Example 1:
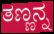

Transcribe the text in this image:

ತಣ್ಣನ್ನ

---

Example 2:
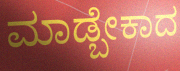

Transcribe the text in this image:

ಮಾಡ್ಬೇಕಾದ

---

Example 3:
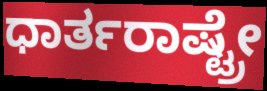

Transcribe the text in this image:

ಧಾರ್ತರಾಷ್ಟ್ರೇ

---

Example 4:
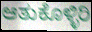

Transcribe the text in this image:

ಆತುಕೊಳ್ಳಿರಿ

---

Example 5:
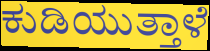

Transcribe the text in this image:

ಕುಡಿಯುತ್ತಾಳೆ